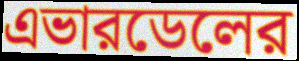
এভারডেলের